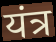
यंत्र